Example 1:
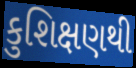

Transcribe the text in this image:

કુશિક્ષણથી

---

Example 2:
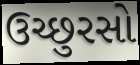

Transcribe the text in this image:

ઉચ્છુરસો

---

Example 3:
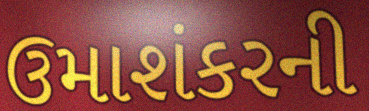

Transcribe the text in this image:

ઉમાશંકરની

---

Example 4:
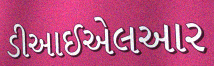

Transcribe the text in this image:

ડીઆઈએલઆર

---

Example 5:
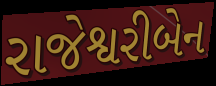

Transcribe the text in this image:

રાજેશ્વરીબેન